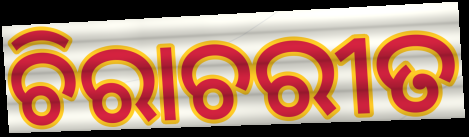
ଚିରାଚରୀତ